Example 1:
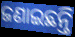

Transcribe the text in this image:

ଜଣାଇଛନ୍ତି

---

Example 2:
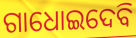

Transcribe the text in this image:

ଗାଧୋଇଦେବି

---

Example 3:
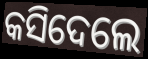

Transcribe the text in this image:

କସିଦେଲେ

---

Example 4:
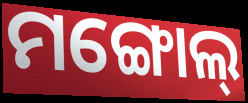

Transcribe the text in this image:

ମଙ୍ଗୋଲ୍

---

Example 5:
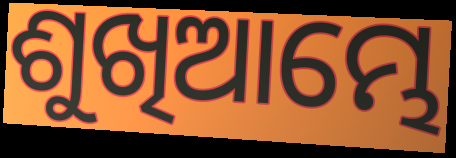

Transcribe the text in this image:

ଶୁଖିଆମ୍ଭେ